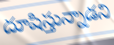
దూషిస్తున్నాడని